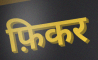
फ़िकर